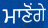
ਮਾਣੋਂਗੇ